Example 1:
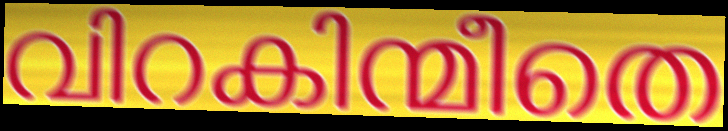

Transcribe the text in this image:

വിറകിന്മീതെ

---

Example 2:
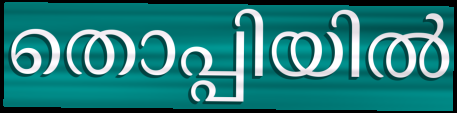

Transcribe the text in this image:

തൊപ്പിയിൽ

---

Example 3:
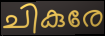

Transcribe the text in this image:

ചികുരേ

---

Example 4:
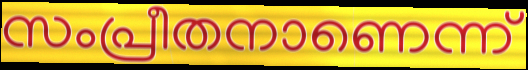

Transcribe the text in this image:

സംപ്രീതനാണെന്ന്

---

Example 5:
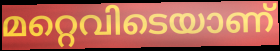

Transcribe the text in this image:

മറ്റെവിടെയാണ്